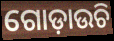
ଗୋଡ଼ାଉଚି